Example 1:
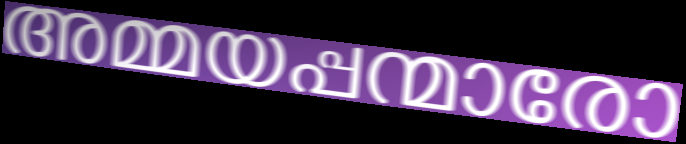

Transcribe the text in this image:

അമ്മയപ്പന്മാരോ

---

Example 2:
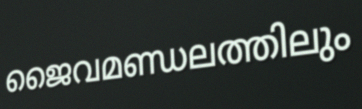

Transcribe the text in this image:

ജൈവമണ്ഡലത്തിലും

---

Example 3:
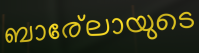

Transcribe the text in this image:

ബാര്ലോയുടെ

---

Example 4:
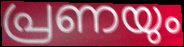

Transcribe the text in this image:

പ്രണയും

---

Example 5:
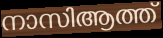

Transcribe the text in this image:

നാസിആത്ത്